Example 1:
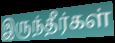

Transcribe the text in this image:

இருந்தீர்கள்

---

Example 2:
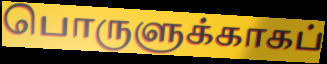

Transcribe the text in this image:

பொருளுக்காகப்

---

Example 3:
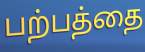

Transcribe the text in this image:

பற்பத்தை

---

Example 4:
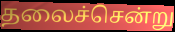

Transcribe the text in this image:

தலைச்சென்று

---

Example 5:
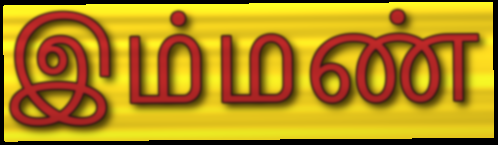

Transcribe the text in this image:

இம்மண்